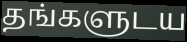
தங்களுடய